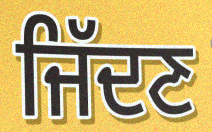
ਜਿੱਦਣ